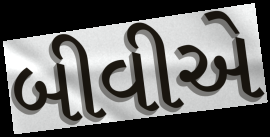
બીવીએ